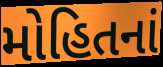
મોહિતનાં